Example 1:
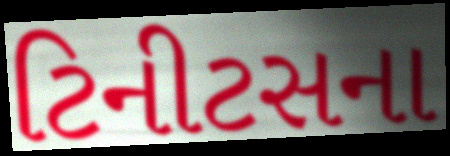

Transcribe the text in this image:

ટિનીટસના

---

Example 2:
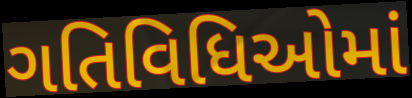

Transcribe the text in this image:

ગતિવિધિઓમાં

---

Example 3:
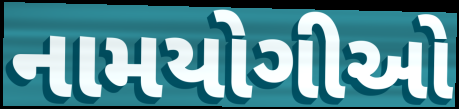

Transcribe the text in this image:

નામયોગીઓ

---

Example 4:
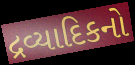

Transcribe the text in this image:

દ્રવ્યાદિકનો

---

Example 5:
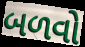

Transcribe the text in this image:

બળવો